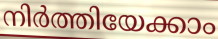
നിർത്തിയേക്കാം